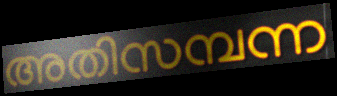
അതിസമ്പന്ന